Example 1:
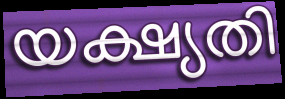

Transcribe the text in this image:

യക്ഷ്യതി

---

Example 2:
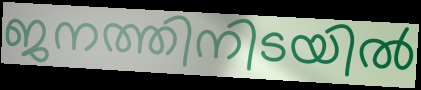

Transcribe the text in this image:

ജനത്തിനിടയിൽ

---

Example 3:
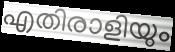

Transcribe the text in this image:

എതിരാളിയും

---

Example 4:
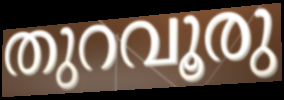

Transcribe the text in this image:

തുറവൂരു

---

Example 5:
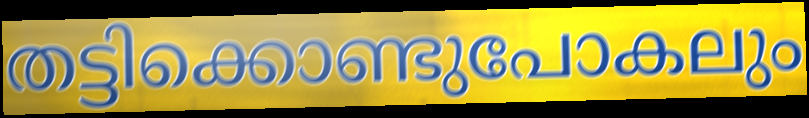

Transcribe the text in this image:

തട്ടിക്കൊണ്ടുപോകലും